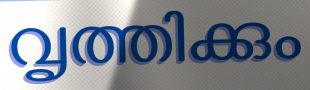
വൃത്തിക്കും